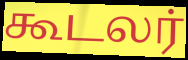
கூடலர்